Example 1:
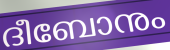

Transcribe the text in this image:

ദീബോനും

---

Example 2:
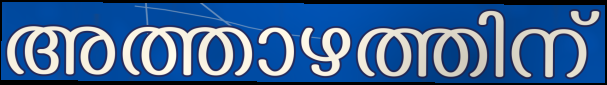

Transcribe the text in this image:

അത്താഴത്തിന്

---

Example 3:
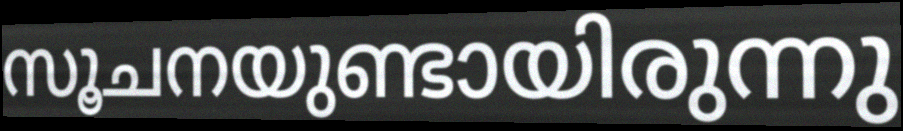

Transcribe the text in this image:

സൂചനയുണ്ടായിരുന്നു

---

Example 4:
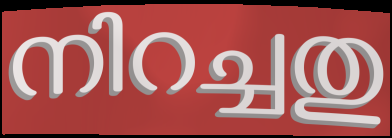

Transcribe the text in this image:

നിറച്ചതു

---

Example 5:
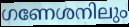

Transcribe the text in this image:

ഗണേശനിലും